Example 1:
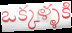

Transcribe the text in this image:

ఒక్కళ్ళకి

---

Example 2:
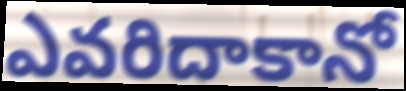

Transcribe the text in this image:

ఎవరిదాకానో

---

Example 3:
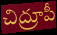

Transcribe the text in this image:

చిద్రూపీ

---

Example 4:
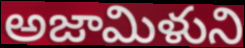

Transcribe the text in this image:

అజామిళుని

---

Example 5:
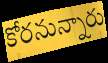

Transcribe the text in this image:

కోరనున్నారు